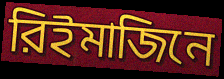
রিইমাজিনে